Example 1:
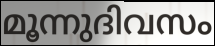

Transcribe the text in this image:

മൂന്നുദിവസം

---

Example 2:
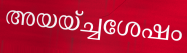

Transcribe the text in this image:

അയയ്ച്ചശേഷം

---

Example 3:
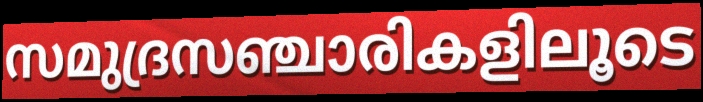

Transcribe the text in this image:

സമുദ്രസഞ്ചാരികളിലൂടെ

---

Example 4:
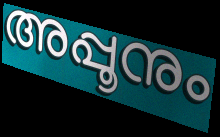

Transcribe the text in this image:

അപ്പൂനും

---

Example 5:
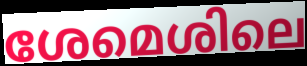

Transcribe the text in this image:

ശേമെശിലെ